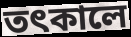
তৎকালে